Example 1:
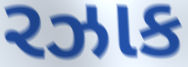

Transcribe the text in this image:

રઝાક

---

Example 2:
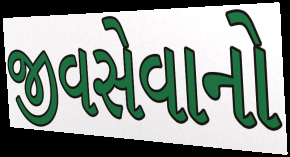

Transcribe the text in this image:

જીવસેવાનો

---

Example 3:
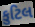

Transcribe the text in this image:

કુટિલ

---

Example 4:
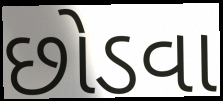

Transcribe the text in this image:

છોડવા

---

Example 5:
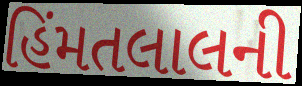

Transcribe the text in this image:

હિંમતલાલની